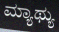
ಮ್ಯಾಥ್ಯು